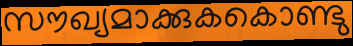
സൗഖ്യമാക്കുകകൊണ്ടു